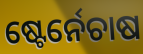
ଷ୍ଟେର୍ନେଚାଷ